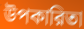
উপকারিতা